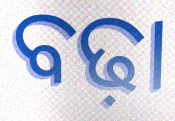
ବଢ଼ା